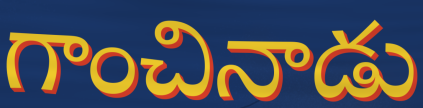
గాంచినాడు